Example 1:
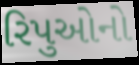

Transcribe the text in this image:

રિપુઓનો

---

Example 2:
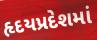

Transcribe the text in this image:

હૃદયપ્રદેશમાં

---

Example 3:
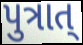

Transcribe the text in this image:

પુત્રાત્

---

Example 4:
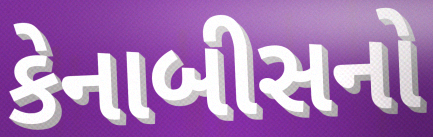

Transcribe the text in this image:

કેનાબીસનો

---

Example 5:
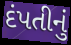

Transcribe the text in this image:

દંપતીનું